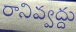
రానివ్వద్దు